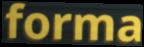
forma